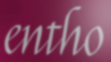
entho